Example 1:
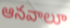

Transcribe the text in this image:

ఆనవాలూ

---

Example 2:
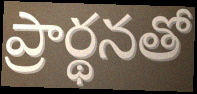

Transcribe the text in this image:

ప్రార్థనతో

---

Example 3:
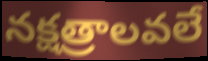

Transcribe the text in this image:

నక్షత్రాలవలే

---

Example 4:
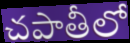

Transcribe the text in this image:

చపాతీలో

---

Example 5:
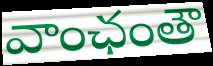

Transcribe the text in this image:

వాంఛంతౌ